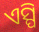
ଏସ୍ପି